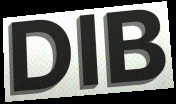
DIB